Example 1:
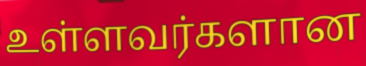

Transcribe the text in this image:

உள்ளவர்களான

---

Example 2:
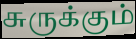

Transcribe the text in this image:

சுருக்கும்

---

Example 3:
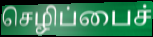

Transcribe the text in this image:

செழிப்பைச்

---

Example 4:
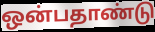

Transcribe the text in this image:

ஒன்பதாண்டு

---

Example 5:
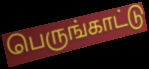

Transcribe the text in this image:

பெருங்காட்டு